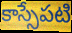
కాస్సేపటి